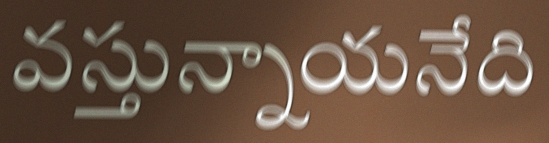
వస్తున్నాయనేది